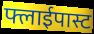
फ्लाईपास्ट